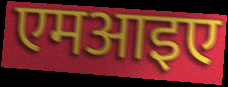
एमआइए